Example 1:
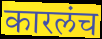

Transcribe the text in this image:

कारलंच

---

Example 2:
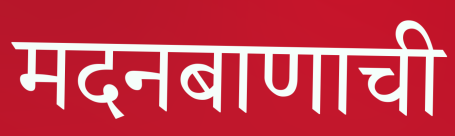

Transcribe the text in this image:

मदनबाणाची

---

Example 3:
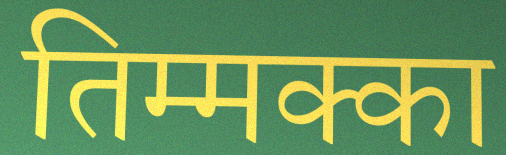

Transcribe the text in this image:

तिम्मक्का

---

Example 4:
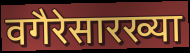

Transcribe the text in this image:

वगैरेसारख्या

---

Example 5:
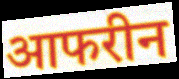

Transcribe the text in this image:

आफरीन